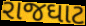
રાજઘાટ